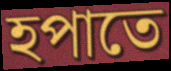
হপাতে